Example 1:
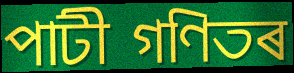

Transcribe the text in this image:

পাটীগণিতৰ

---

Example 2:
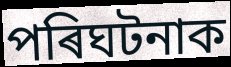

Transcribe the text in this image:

পৰিঘটনাক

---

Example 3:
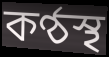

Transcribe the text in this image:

কণ্ঠস্থ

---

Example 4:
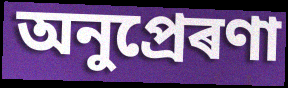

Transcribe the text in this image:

অনুপ্ৰেৰণা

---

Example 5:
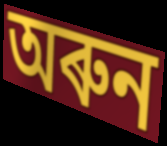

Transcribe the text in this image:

অৰুন